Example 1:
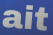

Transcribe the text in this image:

ait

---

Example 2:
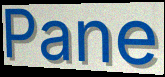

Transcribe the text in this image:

Pane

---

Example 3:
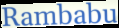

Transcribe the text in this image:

Rambabu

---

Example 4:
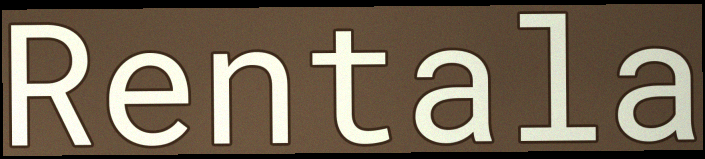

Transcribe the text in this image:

Rentala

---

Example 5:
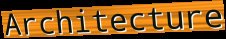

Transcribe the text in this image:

Architecture